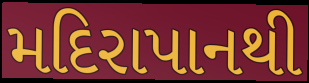
મદિરાપાનથી